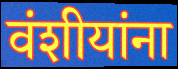
वंशीयांना